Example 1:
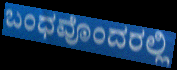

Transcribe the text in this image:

ಬಂಧವೊಂದರಲ್ಲಿ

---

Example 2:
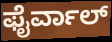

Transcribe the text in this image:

ಫೈರ್ವಾಲ್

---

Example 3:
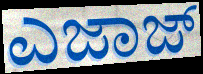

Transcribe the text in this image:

ಎಜಾಜ್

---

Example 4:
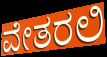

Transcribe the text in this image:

ವೇತರಲಿ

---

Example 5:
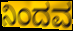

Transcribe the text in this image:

ನಿಂದವ